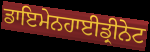
ਡਾਇਮੇਨਹਾਈਡ੍ਰੀਨੇਟ